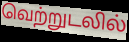
வெற்றுடலில்